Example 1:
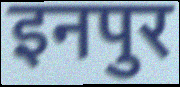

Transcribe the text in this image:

इनपुर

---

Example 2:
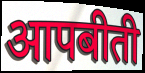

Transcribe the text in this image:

आपबीती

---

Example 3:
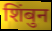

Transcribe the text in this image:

शिंबुन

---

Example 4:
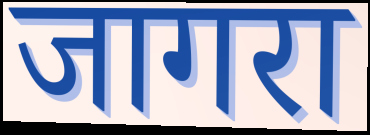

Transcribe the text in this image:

जागरा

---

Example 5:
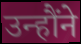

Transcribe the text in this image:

उन्हौंने